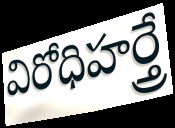
విరోధిహర్త్రే